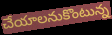
చేయాలనుకొంటున్న